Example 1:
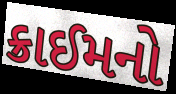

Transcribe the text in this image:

ક્રાઈમનો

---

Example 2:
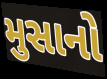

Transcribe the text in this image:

મુસાનો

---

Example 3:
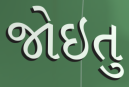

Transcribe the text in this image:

જોઇતુ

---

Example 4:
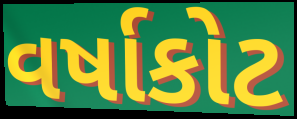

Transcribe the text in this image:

વર્ષાકોટ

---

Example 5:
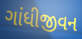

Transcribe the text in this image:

ગાંધીજીવન